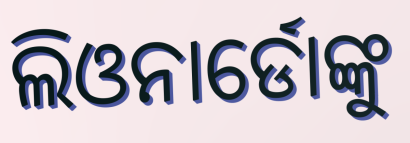
ଲିଓନାର୍ଡୋଙ୍କୁ